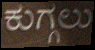
ಕುಗ್ಗಲು